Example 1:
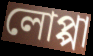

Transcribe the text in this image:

লোপ্পা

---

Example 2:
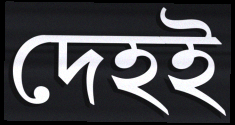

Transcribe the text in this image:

দেহই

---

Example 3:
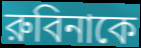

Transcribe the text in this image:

রুবিনাকে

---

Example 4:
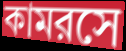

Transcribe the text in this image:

কামরসে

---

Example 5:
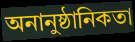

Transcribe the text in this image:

অনানুষ্ঠানিকতা